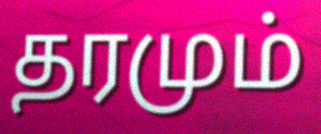
தரமும்